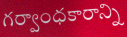
గర్వాంధకారాన్ని